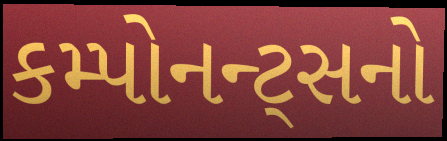
કમ્પોનન્ટ્સનો